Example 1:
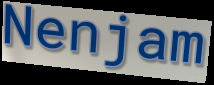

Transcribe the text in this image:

Nenjam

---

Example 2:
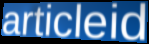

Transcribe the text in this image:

articleid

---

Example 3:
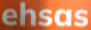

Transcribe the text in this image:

ehsas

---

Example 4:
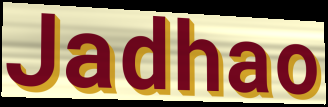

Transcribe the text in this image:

Jadhao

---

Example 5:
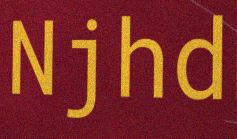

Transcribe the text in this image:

Njhd